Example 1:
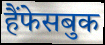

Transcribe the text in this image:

हैंफेसबुक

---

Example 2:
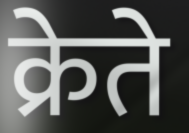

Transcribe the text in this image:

क्रेते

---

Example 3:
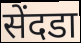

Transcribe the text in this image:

सेंदडा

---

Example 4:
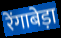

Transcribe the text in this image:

रेंगाबेड़ा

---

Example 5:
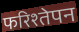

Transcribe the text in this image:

फरिश्तेपन